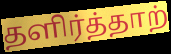
தளிர்த்தாற்